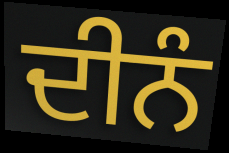
ਦੀਨੰ